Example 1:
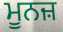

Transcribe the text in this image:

ਮੂਨਜ਼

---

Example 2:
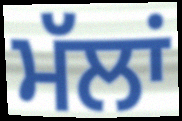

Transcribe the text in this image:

ਮੱਲਾਂ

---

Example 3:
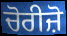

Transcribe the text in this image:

ਚੋਰੀਜ਼ੋ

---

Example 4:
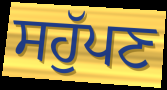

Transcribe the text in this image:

ਸਹੁੱਪਣ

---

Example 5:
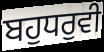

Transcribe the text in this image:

ਬਹੁਧਰੁਵੀ